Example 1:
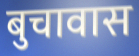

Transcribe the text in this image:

बुचावास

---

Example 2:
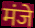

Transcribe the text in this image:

मंजे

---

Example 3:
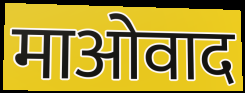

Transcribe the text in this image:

माओवाद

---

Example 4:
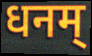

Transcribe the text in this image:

धनम्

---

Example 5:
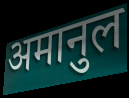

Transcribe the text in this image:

अमानुल